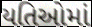
યતિઓમાં